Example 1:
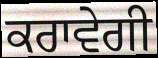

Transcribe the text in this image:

ਕਰਾਵੇਗੀ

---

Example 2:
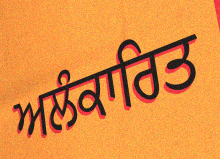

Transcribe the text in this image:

ਅਲੰਕਾਰਿਤ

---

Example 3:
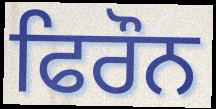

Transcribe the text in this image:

ਫਿਰੌਨ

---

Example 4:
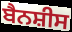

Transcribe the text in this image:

ਬੈਨਸ਼ੀਸ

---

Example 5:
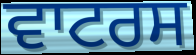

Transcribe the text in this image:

ਵਾਟਰਸ